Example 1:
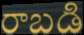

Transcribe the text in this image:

రాబడి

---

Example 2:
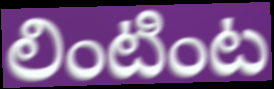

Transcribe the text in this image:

లింటింట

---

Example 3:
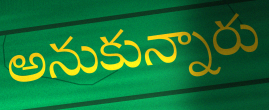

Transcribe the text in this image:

అనుకున్నారు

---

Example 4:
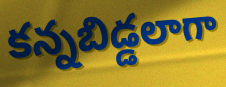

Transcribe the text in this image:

కన్నబిడ్డలాగా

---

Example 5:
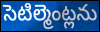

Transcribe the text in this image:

సెటిల్మెంట్లను